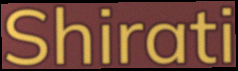
Shirati